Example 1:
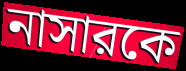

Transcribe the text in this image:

নাসারকে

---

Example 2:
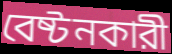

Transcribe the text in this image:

বেষ্টনকারী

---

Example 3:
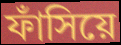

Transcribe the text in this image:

ফাঁসিয়ে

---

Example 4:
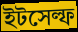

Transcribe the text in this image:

ইটসেল্ফ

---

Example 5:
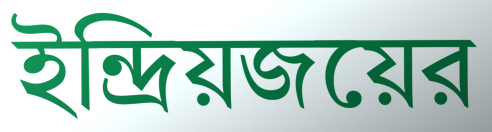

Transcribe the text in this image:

ইন্দ্রিয়জয়ের